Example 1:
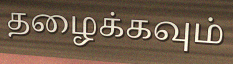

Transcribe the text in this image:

தழைக்கவும்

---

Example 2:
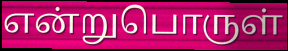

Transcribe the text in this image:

என்றுபொருள்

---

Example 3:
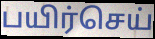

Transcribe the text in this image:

பயிர்செய்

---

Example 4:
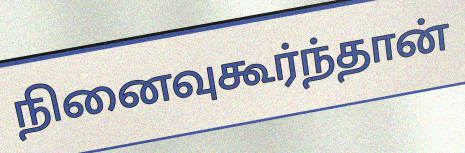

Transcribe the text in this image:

நினைவுகூர்ந்தான்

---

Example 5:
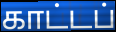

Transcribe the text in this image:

காட்டப்